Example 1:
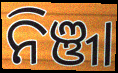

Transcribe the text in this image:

ନିଞ୍ଜା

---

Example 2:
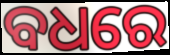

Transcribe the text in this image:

ବଧରେ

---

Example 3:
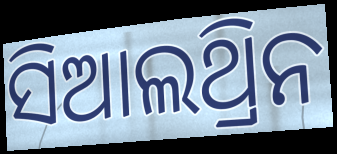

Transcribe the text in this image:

ସିଆଲଥ୍ରିନ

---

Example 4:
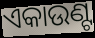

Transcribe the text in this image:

ଏକାଉଣ୍ଟ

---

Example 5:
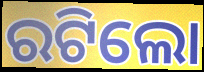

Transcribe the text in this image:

ରଟିଲୋ